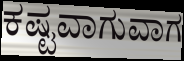
ಕಷ್ಟವಾಗುವಾಗ